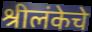
श्रीलंकेचे